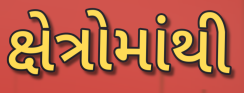
ક્ષેત્રોમાંથી